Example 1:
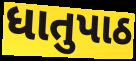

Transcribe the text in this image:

ધાતુપાઠ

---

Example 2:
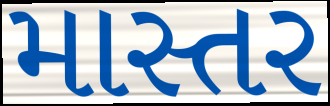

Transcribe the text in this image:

માસ્તર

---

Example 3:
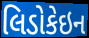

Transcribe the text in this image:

લિડોકેઇન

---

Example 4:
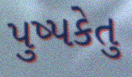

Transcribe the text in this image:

પુષ્પકેતુ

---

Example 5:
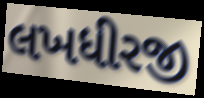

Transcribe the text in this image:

લખધીરજી